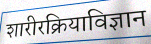
शारीरक्रियाविज्ञान